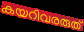
കയറിവരരുത്